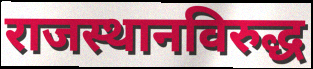
राजस्थानविरुद्ध